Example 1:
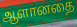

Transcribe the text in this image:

ஆளானதை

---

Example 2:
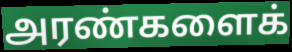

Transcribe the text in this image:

அரண்களைக்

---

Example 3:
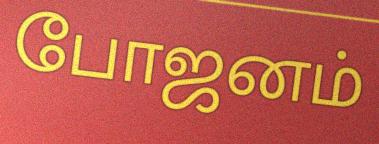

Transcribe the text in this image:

போஜனம்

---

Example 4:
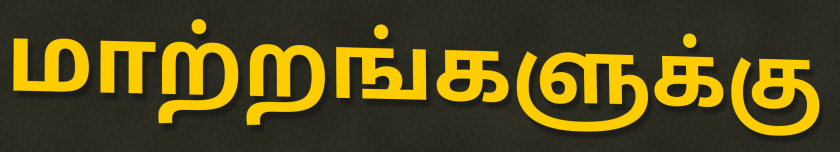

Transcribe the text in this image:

மாற்றங்களுக்கு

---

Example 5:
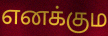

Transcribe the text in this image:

எனக்கும